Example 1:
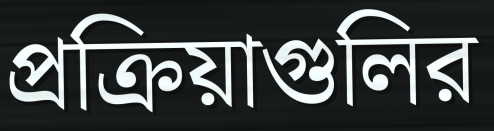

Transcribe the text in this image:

প্রক্রিয়াগুলির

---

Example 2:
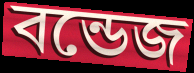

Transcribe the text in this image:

বন্ডেজ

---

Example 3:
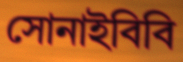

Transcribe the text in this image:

সোনাইবিবি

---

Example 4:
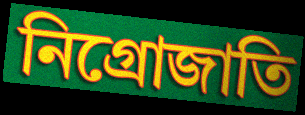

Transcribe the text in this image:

নিগ্রোজাতি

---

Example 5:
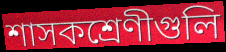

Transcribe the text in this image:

শাসকশ্রেণীগুলি